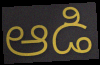
ఆడి